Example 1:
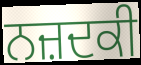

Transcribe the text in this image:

ਨਜ਼ਦਕੀ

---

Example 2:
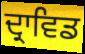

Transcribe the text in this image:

ਦ੍ਰਾਵਿਡ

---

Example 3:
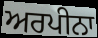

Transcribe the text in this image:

ਅਰਪੀਨਾ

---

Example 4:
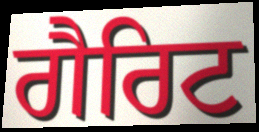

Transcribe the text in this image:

ਗੈਰਿਟ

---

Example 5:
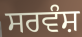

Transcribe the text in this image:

ਸਰਵੰਸ਼